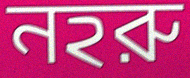
নহৰু